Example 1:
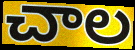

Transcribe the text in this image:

చాల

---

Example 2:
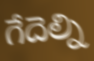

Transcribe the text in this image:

గేదెల్ని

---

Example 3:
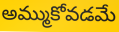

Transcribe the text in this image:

అమ్ముకోవడమే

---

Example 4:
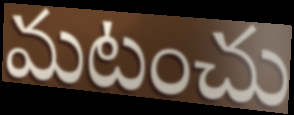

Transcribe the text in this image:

మటంచు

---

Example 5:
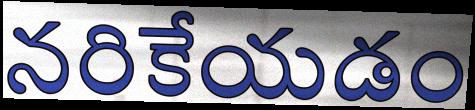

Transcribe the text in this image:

నరికేయడం